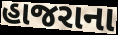
હાજરાના